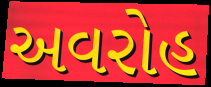
અવરોહ